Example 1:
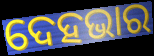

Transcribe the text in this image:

ଦେହଭାର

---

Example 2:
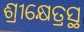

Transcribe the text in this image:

ଶ୍ରୀକ୍ଷେତ୍ରସ୍ଥ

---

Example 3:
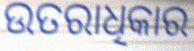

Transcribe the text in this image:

ଉତରାଧିକାର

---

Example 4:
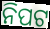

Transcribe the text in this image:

ନିପଟ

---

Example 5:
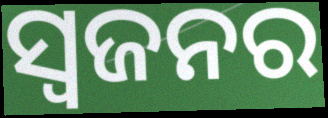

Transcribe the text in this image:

ସ୍ୱଜନର